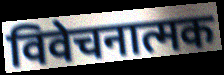
विवेचनात्मक